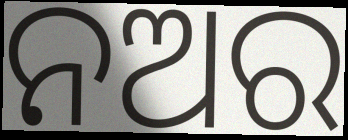
ନଅର